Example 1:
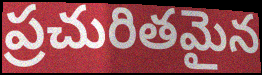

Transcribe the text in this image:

ప్రచురితమైన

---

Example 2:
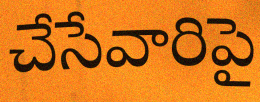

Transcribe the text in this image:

చేసేవారిపై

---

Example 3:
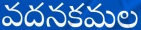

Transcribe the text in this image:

వదనకమల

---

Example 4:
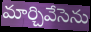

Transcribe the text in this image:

మార్చివేసెను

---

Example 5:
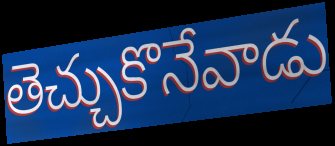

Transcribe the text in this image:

తెచ్చుకొనేవాడు